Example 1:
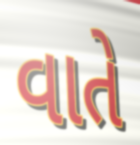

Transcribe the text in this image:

વાતે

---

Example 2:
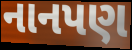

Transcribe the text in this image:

નાનપણ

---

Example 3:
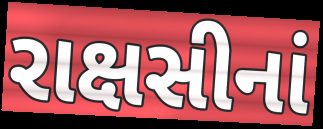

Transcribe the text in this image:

રાક્ષસીનાં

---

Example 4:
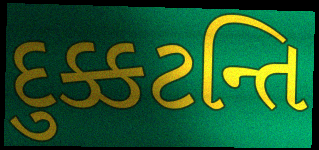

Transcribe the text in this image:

દુક્કટન્તિ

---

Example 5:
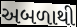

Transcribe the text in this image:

અબળાથી